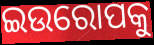
ଇଉରୋପକୁ